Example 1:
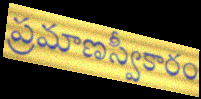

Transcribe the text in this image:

ప్రమాణస్వీకారం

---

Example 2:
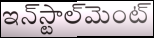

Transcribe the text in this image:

ఇన్‌స్టాల్‌మెంట్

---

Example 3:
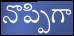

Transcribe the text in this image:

నొప్పిగా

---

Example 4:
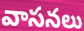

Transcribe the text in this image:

వాసనలు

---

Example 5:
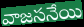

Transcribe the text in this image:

వాజసనేయి